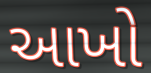
આખો